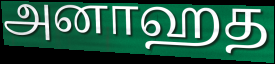
அனாஹத